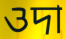
ওদা